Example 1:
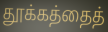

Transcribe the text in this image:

தூக்கத்தைத்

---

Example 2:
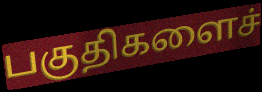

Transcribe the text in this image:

பகுதிகளைச்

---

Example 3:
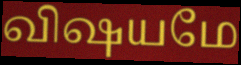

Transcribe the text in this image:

விஷயமே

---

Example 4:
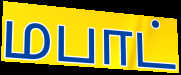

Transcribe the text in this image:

மபாட்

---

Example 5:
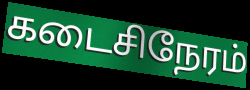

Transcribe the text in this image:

கடைசிநேரம்